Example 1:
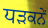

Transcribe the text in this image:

ਧੜਕਨੇਂ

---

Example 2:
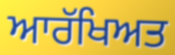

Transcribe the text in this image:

ਆਰੱਖਿਅਤ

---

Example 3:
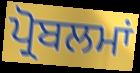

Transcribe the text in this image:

ਪ੍ਰੋਬਲਮਾਂ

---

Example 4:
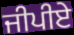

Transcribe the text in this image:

ਜੀਪੀਏ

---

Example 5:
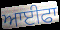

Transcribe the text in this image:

ਆਈਫਾ